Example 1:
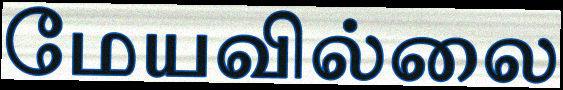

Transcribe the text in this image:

மேயவில்லை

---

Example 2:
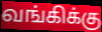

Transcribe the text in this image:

வங்கிக்கு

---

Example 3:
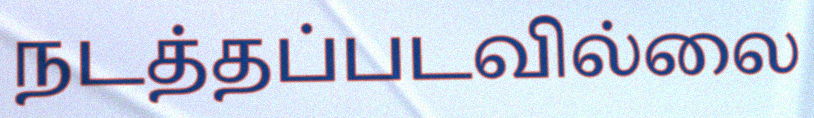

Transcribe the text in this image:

நடத்தப்படவில்லை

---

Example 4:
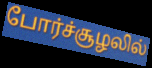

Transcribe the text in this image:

போர்ச்சூழலில்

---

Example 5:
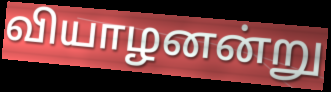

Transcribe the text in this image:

வியாழனன்று